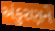
અંકુરણને